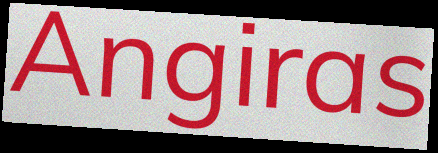
Angiras